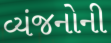
વ્યંજનોની